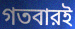
গতবারই